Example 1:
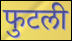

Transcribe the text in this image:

फुटली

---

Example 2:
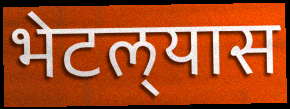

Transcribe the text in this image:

भेटल्यास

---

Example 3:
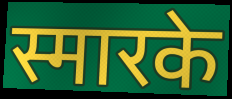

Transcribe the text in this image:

स्मारके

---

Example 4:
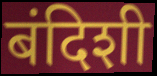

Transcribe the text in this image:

बंदिशी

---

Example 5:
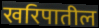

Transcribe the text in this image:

खरिपातील